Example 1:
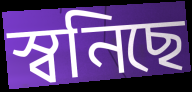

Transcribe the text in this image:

স্বনিছে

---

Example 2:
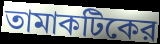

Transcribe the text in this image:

তামাকটিকের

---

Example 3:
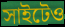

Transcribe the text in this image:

সাইটেও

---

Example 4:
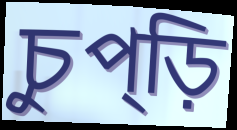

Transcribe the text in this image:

চুপ্‌ড়ি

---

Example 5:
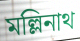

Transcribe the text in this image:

মল্লিনাথ